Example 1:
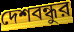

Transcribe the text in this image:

দেশবন্ধুর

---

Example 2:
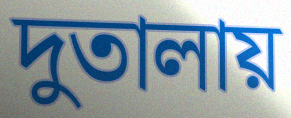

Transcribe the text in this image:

দুতালায়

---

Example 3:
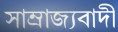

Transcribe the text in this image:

সাম্রাজ্যবাদী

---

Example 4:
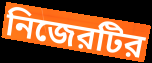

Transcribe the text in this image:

নিজেরটির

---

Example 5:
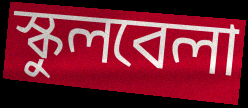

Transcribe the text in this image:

স্কুলবেলা